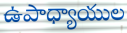
ఉపాధ్యాయుల